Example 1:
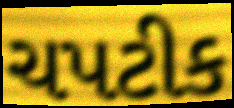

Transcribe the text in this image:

ચપટીક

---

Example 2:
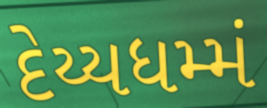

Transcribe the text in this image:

દેય્યધમ્મં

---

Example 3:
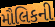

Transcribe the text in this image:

મૌલિકની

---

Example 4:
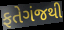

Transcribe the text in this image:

ફતેગંજથી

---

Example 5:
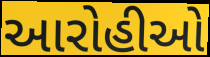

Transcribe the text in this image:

આરોહીઓ